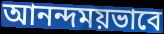
আনন্দময়ভাবে